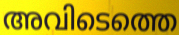
അവിടെത്തെ